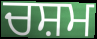
ਚਸ਼ਮ